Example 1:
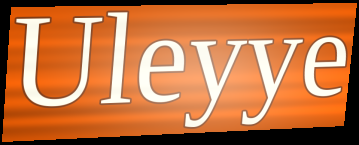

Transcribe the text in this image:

Uleyye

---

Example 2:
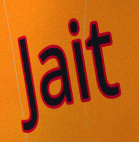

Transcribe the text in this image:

Jait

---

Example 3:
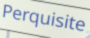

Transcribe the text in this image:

Perquisite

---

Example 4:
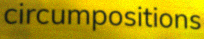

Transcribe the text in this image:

circumpositions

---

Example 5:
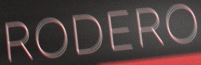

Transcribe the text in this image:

RODERO